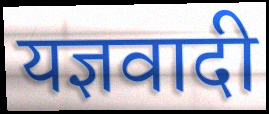
यज्ञवादी